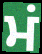
ਮਂ